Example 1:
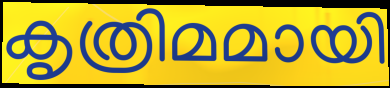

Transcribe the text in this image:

കൃത്രിമമായി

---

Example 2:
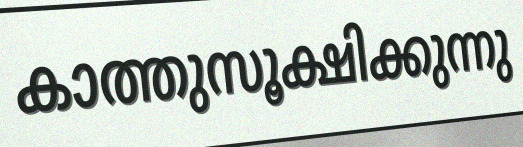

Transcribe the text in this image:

കാത്തുസൂക്ഷിക്കുന്നു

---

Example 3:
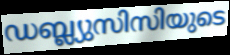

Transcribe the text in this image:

ഡബ്ല്യുസിസിയുടെ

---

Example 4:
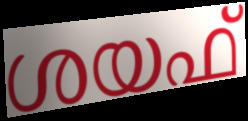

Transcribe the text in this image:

ശയഫ്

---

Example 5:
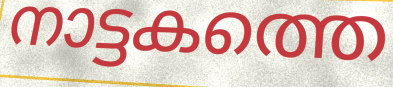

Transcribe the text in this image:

നാട്ടകത്തെ